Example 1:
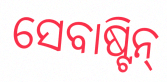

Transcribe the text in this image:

ସେବାଷ୍ଟିନ୍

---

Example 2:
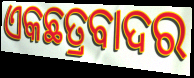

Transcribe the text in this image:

ଏକଛତ୍ରବାଦର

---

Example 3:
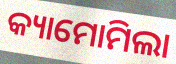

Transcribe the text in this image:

କ୍ୟାମୋମିଲା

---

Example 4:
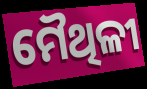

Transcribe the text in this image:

ମୈଥିଳୀ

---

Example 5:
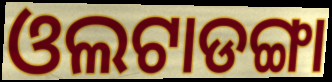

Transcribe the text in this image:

ଓଲଟାଡଙ୍ଗା